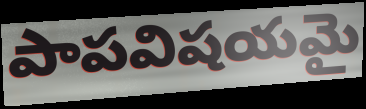
పాపవిషయమై